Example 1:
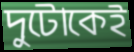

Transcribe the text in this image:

দুটোকেই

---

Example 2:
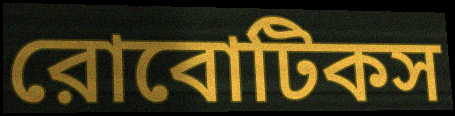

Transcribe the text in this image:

রোবোটিকস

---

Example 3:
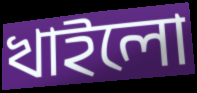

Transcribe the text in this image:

খাইলো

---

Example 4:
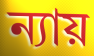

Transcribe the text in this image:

ন্যায়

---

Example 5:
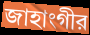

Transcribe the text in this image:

জাহাংগীর